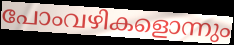
പോംവഴികളൊന്നും